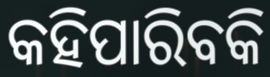
କହିପାରିବକି